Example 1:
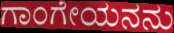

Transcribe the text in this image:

ಗಾಂಗೇಯನನು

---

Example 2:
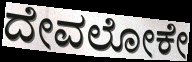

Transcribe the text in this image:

ದೇವಲೋಕೇ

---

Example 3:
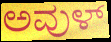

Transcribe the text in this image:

ಅವುಳ್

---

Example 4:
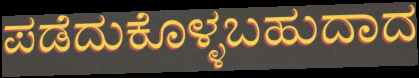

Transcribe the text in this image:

ಪಡೆದುಕೊಳ್ಳಬಹುದಾದ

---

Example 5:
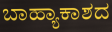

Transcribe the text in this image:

ಬಾಹ್ಯಾಕಾಶದ